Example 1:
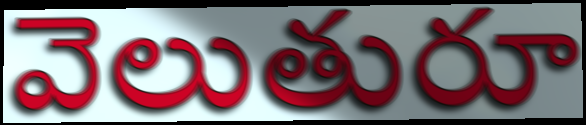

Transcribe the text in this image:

వెలుతురూ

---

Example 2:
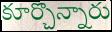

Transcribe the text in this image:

కూర్చొన్నారు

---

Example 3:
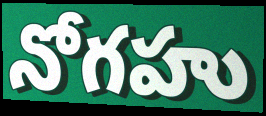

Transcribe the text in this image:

నోగహు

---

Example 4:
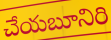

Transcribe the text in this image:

చేయబూనిరి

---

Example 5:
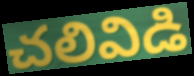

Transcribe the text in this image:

చలివిడి